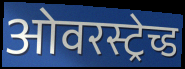
ओवरस्ट्रेच्ड